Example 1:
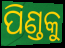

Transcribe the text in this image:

ପିଣ୍ଡକୁ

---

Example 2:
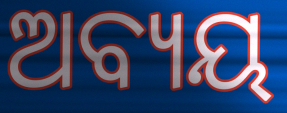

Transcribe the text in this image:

ଅବ୍ୟୟ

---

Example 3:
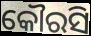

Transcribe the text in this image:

କୌରସି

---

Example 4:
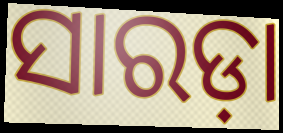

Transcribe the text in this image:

ସାରଡ଼ା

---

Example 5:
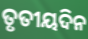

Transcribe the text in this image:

ତୃତୀୟଦିନ